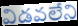
విడవలేని